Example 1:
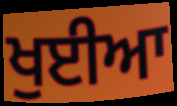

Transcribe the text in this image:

ਖੁਈਆ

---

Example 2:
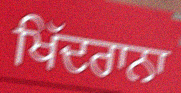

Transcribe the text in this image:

ਖਿੱਦਰਾਨਾ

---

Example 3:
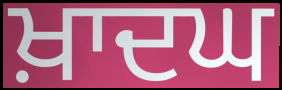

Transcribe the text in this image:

ਖ਼ਾਦਘ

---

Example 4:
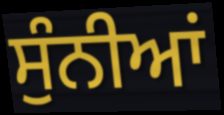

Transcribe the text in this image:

ਸੁੰਨੀਆਂ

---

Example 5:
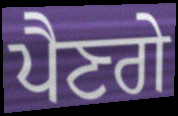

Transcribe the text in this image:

ਪੈਣਗੇ